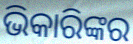
ଭିକାରିଙ୍କର